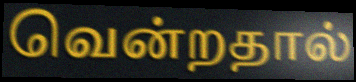
வென்றதால்